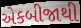
એકબીજાથી